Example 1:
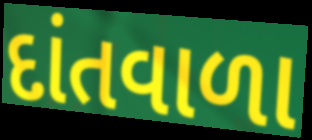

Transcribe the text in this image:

દાંતવાળા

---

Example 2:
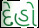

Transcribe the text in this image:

દેહો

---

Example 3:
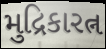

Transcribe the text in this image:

મુદ્રિકારત્ન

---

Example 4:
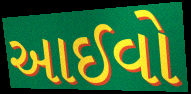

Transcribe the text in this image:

આઈવો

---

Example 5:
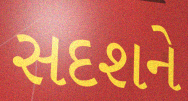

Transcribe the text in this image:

સદશને